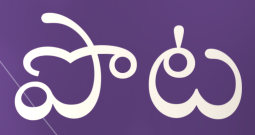
పొట